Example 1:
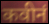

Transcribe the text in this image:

कवीनं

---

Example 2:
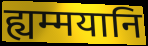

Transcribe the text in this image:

ह्यम्मयानि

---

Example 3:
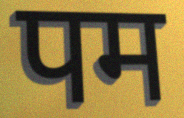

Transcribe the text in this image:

पम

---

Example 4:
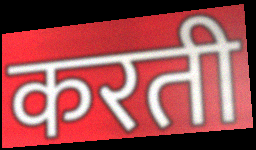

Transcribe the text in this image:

करती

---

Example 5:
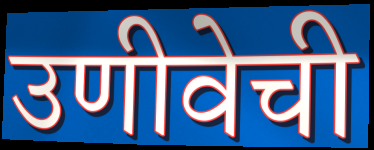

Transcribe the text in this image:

उणीवेची